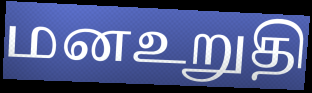
மனஉறுதி